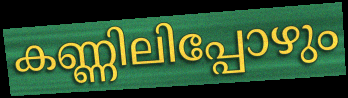
കണ്ണിലിപ്പോഴും